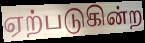
ஏற்படுகின்ற